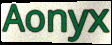
Aonyx